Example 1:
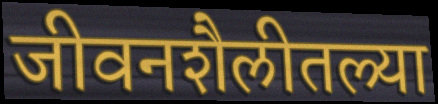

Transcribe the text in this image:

जीवनशैलीतल्या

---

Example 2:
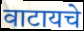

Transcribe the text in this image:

वाटायचे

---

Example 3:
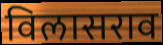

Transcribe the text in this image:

विलासराव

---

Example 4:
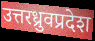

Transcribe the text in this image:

उत्तरध्रुवप्रदेश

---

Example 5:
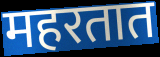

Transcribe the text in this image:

महरतात